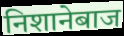
निशानेबाज